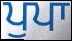
ਪੁਪਾ